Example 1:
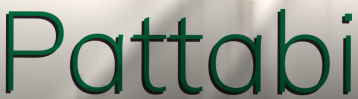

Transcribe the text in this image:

Pattabi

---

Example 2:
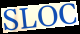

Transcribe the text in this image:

SLOC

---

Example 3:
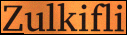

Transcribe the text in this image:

Zulkifli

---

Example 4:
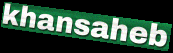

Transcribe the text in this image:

khansaheb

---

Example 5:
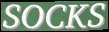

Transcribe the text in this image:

SOCKS